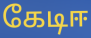
கேடிஈ